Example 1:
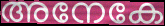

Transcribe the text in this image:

അനേകേ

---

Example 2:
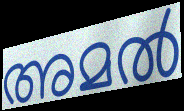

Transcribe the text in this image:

അമൽ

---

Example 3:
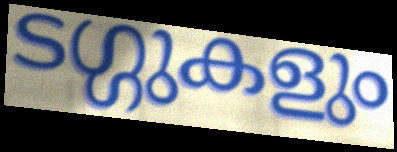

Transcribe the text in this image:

ടഗ്ഗുകളും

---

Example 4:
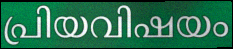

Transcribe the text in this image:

പ്രിയവിഷയം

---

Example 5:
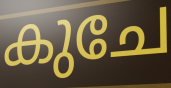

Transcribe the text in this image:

കുചേ